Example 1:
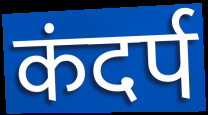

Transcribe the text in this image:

कंदर्प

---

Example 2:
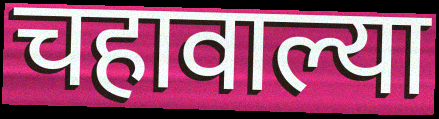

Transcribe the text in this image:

चहावाल्या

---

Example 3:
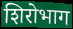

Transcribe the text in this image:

शिरोभाग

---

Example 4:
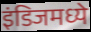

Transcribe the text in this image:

इंडिजमध्ये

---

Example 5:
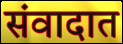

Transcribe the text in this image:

संवादात